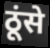
ठूंसे